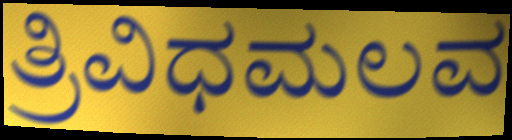
ತ್ರಿವಿಧಮಲವ